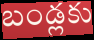
బండ్లకు